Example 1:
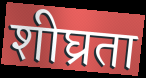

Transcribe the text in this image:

शीघ्रता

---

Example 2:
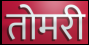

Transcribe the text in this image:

तोमरी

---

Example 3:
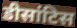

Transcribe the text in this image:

डीसांटिस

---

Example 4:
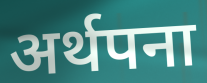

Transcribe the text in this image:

अर्थपना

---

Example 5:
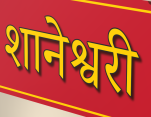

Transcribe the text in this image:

शानेश्वरी